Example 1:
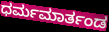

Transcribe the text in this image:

ಧರ್ಮಮಾರ್ತಂಡ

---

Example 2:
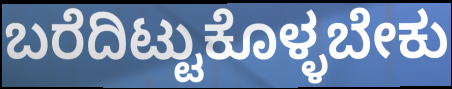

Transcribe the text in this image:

ಬರೆದಿಟ್ಟುಕೊಳ್ಳಬೇಕು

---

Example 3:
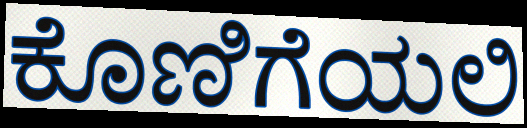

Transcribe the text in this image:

ಕೊಣಿಗೆಯಲಿ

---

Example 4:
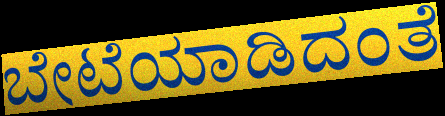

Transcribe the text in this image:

ಬೇಟೆಯಾಡಿದಂತೆ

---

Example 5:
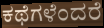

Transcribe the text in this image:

ಕಥೆಗಳೆಂದರೆ